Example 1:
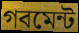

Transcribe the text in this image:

গবমেন্ট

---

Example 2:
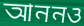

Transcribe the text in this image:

আননও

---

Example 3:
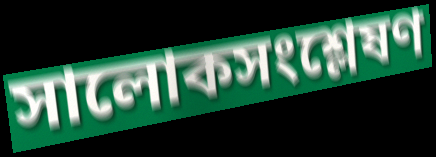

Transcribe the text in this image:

সালোকসংশ্লেষণ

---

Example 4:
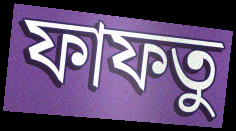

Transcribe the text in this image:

ফাফতু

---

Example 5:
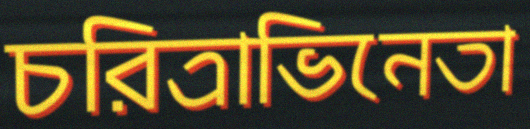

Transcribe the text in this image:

চরিত্রাভিনেতা